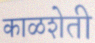
काळशेती